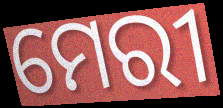
ମେରୀ